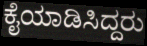
ಕೈಯಾಡಿಸಿದ್ದರು